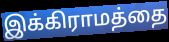
இக்கிராமத்தை